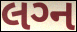
લગ્‍ન